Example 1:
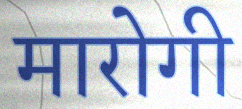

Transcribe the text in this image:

मारोगी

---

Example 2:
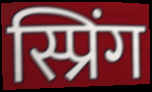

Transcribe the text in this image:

स्प्रिंग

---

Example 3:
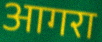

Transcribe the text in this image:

आगरा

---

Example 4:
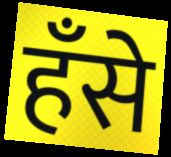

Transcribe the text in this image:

हँसे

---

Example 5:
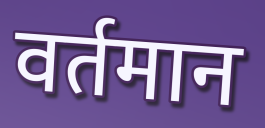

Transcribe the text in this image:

वर्तमान